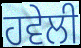
ਹਵੇਲੀ